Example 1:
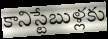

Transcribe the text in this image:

కానిస్టేబుళ్లకు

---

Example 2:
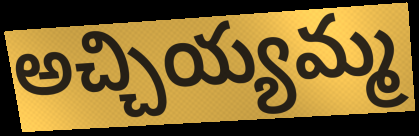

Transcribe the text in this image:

అచ్చియ్యమ్మ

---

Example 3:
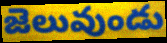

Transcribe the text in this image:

జెలువుండు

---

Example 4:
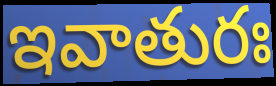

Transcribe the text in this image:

ఇవాతురః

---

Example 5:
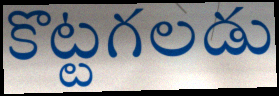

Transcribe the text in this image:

కొట్టగలడు